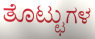
ತೊಟ್ಟುಗಳ